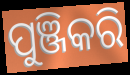
ପୁଞ୍ଜିକରି